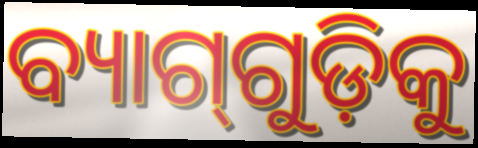
ବ୍ୟାଗ୍‍ଗୁଡ଼ିକୁ